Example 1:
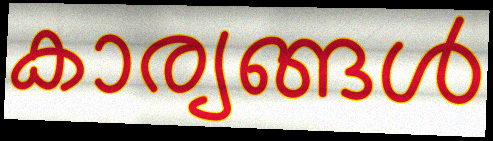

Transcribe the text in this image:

കാര്യങ്ങൾ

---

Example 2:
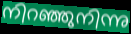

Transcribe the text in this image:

നിറഞ്ഞുനിന്നു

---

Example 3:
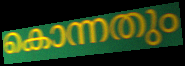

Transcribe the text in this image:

കൊന്നതും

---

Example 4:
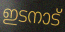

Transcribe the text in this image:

ഇടനാട്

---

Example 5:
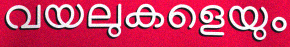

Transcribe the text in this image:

വയലുകളെയും